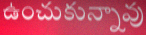
ఉంచుకున్నావు